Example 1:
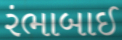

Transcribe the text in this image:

રંભાબાઈ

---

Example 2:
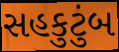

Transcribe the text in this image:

સહકુટુંબ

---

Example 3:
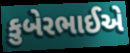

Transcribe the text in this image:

કુબેરભાઈએ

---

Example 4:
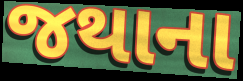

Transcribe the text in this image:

જથાના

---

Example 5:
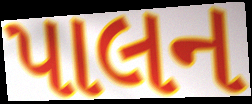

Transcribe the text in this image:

પાલન